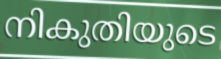
നികുതിയുടെ